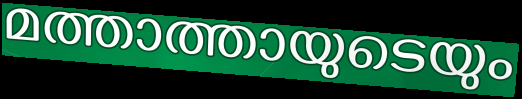
മത്താത്തായുടെയും